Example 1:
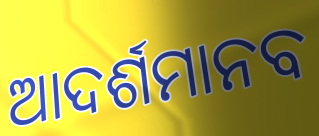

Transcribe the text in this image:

ଆଦର୍ଶମାନବ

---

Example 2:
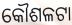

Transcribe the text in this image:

କୌଶଳଟା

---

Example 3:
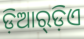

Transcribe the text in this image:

ଡ଼ିଆର୍‌ଡ଼ିଏ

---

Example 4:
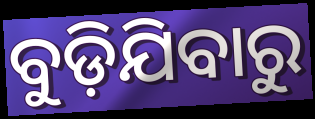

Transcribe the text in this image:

ବୁଡ଼ିଯିବାରୁ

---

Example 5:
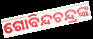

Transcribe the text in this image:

ଗୋବିନ୍ଦଚନ୍ଦ୍ରଙ୍କ